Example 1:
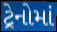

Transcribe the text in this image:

ટ્રેનોમાં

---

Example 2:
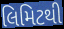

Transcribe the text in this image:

લિમિટથી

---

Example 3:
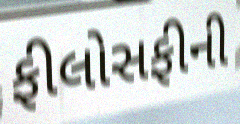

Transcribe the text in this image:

ફીલોસફીની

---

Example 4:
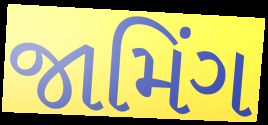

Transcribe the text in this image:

જામિંગ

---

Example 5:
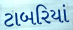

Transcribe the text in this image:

ટાબરિયાં